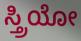
ಸ್ತ್ರಿಯೋ